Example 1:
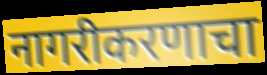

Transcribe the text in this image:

नागरीकरणाचा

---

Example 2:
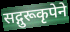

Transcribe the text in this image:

सद्गुरूकृपेने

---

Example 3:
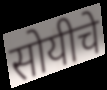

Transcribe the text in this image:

सोयीचे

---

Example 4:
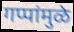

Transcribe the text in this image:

गप्पांमुळे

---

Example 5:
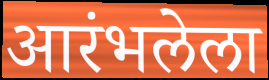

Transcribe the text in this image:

आरंभलेला